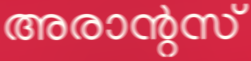
അരാന്റസ്